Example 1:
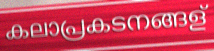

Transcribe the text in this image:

കലാപ്രകടനങ്ങള്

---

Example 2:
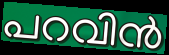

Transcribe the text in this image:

പറവിൻ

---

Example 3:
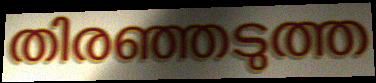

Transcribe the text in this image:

തിരഞ്ഞടുത്ത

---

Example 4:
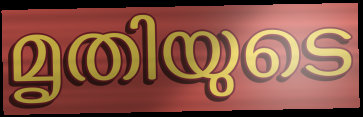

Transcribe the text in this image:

മൃതിയുടെ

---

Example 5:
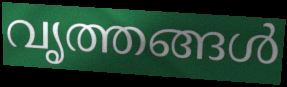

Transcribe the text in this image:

വൃത്തങ്ങൾ